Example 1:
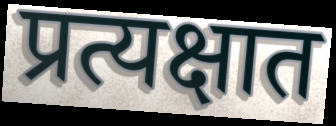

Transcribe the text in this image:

प्रत्यक्षात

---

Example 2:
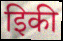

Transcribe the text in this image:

इिकी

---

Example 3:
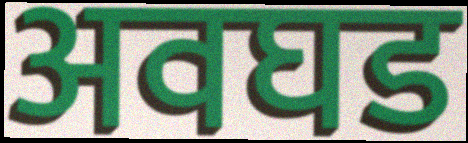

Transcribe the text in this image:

अवघड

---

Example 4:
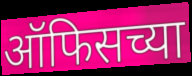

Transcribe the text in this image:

ऑफिसच्या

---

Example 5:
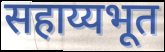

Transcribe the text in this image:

सहाय्यभूत